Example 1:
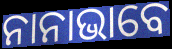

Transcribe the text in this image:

ନାନାଭାବେ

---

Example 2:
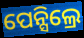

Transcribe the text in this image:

ପେନ୍ସିଲ୍ରେ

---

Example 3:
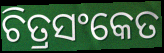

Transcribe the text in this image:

ଚିତ୍ରସଂକେତ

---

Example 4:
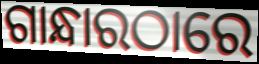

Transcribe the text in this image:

ଗାନ୍ଧାରଠାରେ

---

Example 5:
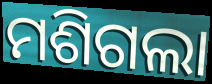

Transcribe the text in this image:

ମଶିଗଲା